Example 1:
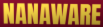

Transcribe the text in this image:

NANAWARE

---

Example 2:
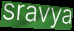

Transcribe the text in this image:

sravya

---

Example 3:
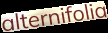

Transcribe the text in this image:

alternifolia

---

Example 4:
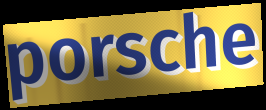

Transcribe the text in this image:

porsche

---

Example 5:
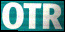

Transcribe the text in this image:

OTR